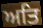
ਅਤਿ